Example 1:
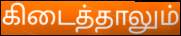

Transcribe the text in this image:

கிடைத்தாலும்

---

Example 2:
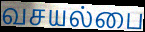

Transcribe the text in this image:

வசயல்பை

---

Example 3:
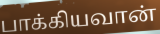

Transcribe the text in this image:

பாக்கியவான்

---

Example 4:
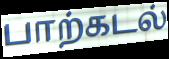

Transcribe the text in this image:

பாற்கடல்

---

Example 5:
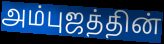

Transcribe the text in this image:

அம்புஜத்தின்